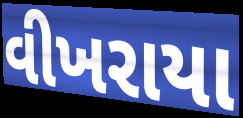
વીખરાયા